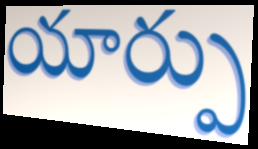
యార్పు